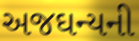
અજઘન્યની